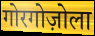
गोरगोज़ोला